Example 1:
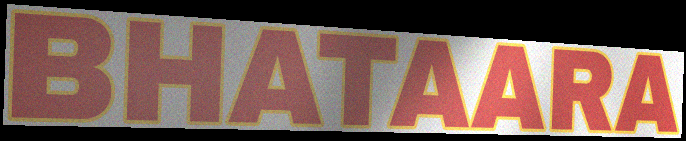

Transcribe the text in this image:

BHATAARA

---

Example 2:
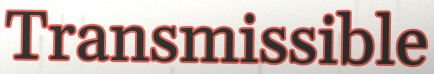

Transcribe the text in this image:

Transmissible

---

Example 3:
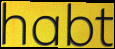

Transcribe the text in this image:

habt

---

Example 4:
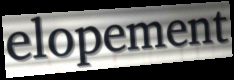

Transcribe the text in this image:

elopement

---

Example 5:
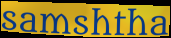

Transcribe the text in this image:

samshtha